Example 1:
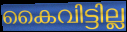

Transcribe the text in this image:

കൈവിട്ടില്ല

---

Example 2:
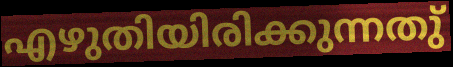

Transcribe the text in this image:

എഴുതിയിരിക്കുന്നതു്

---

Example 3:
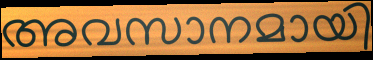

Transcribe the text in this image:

അവസാനമായി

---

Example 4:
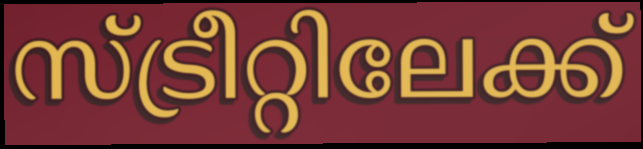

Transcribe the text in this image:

സ്ട്രീറ്റിലേക്ക്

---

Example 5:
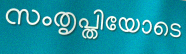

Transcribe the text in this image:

സംതൃപ്തിയോടെ